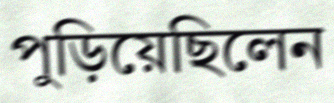
পুড়িয়েছিলেন